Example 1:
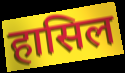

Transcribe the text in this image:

हासिल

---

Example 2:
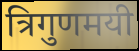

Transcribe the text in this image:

त्रिगुणमयी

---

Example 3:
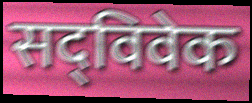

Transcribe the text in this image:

सद्‌विवेक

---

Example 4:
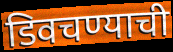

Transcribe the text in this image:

डिवचण्याची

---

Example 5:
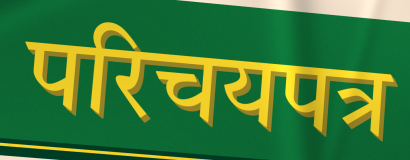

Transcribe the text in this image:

परिचयपत्र